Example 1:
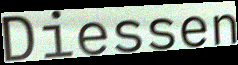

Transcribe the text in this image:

Diessen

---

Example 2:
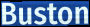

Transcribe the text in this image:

Buston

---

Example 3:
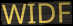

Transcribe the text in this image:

WIDF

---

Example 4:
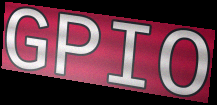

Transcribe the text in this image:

GPIO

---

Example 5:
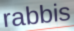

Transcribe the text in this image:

rabbis